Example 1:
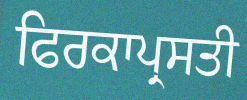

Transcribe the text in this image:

ਫਿਰਕਾਪ੍ਰਸਤੀ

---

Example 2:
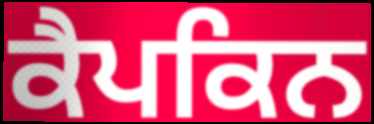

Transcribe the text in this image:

ਕੈਪਕਿਨ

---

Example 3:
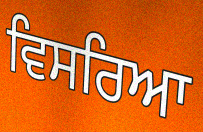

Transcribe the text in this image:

ਵਿਸਰਿਆ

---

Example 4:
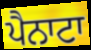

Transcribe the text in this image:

ਪੈਨਾਟਾ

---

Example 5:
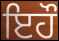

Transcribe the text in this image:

ਇਹੌ